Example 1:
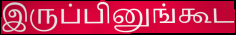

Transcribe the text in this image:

இருப்பினுங்கூட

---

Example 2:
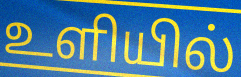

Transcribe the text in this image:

உளியில்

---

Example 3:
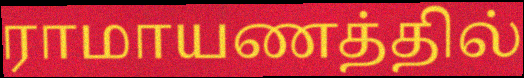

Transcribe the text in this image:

ராமாயணத்தில்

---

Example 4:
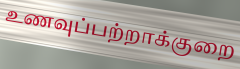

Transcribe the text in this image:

உணவுப்பற்றாக்குறை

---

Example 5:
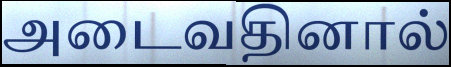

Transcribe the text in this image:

அடைவதினால்